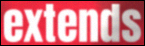
extends